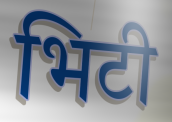
भिटी